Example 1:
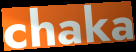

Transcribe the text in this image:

chaka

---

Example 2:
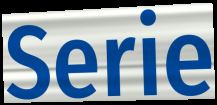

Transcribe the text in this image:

Serie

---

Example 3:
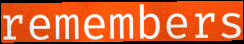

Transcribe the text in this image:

remembers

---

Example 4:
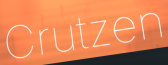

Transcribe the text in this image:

Crutzen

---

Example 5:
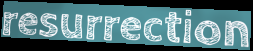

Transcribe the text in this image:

resurrection